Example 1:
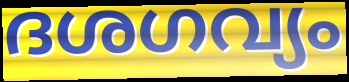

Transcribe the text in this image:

ദശഗവ്യം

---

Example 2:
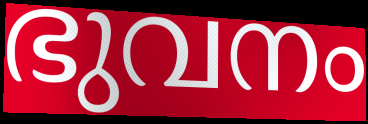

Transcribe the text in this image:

ഭുവനം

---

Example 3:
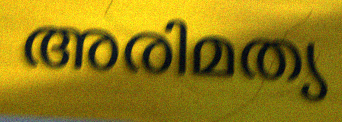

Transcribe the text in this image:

അരിമത്യ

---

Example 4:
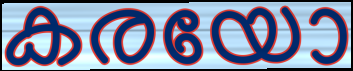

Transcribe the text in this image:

കരയോ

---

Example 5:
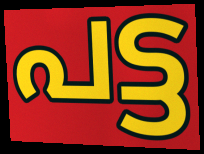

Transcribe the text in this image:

പട്ട